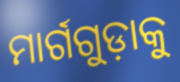
ମାର୍ଗଗୁଡ଼ାକୁ